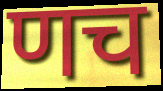
णच